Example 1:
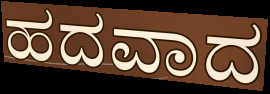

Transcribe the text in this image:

ಹದವಾದ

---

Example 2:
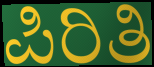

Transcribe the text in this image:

ಪಿರಿತಿ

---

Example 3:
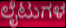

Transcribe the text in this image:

ಲೈಟುಗಳ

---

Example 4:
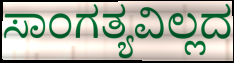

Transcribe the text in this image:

ಸಾಂಗತ್ಯವಿಲ್ಲದ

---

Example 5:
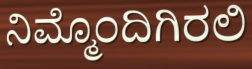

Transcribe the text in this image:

ನಿಮ್ಮೊಂದಿಗಿರಲಿ